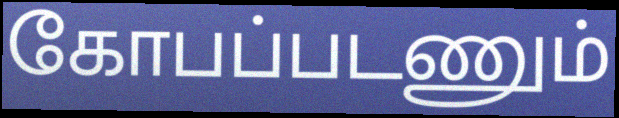
கோபப்படணும்